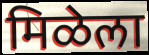
मिळेला